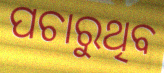
ପଚାରୁଥିବ